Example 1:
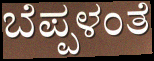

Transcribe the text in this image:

ಬೆಪ್ಪಳಂತೆ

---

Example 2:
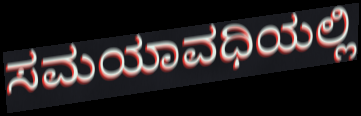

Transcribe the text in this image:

ಸಮಯಾವಧಿಯಲ್ಲಿ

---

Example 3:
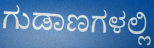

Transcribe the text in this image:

ಗುಡಾಣಗಳಲ್ಲಿ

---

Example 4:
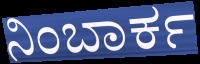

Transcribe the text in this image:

ನಿಂಬಾರ್ಕ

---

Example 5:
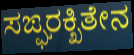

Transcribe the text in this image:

ಸಙ್ಘರಕ್ಖಿತೇನ